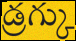
డ్రగ్కు